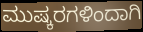
ಮುಷ್ಕರಗಳಿಂದಾಗಿ